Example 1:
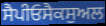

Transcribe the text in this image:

ਸੈਪੀਓਸੈਕਸੁਅਲ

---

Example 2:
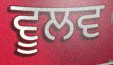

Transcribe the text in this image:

ਵੂਲਵ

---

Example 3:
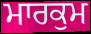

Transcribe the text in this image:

ਮਾਰਕੁਮ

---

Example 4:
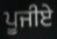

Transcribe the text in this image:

ਪੂਜੀਏ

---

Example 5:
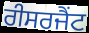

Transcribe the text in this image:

ਰੀਸਰਜੈਂਟ